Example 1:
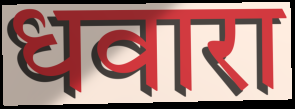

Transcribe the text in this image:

धवारा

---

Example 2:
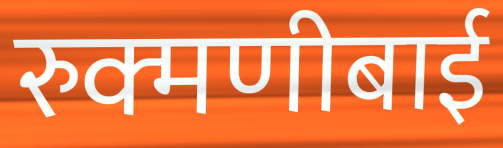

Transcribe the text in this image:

रुक्मणीबाई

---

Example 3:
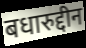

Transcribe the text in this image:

बधारुद्दीन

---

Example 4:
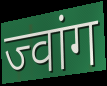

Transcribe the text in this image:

ज्वांग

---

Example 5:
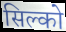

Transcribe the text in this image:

सिल्को